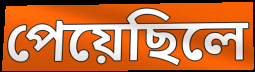
পেয়েছিলে